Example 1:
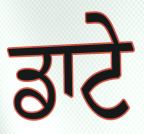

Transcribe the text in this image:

ਡਾਟੇ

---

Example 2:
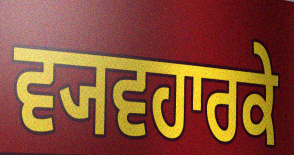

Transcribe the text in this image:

ਵ੍ਯਵਹਾਰਕੇ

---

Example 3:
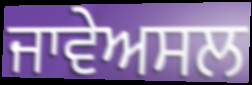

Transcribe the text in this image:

ਜਾਵੇਅਸਲ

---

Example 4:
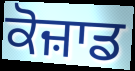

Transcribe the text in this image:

ਕੋਜ਼ਾਡ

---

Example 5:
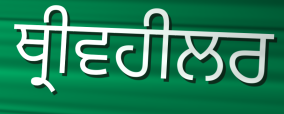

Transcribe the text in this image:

ਥ੍ਰੀਵਹੀਲਰ